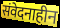
संवेदनाहीन